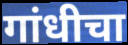
गांधीचा